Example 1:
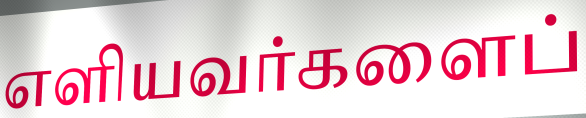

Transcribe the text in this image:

எளியவர்களைப்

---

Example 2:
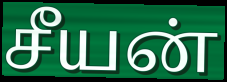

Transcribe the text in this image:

சீயன்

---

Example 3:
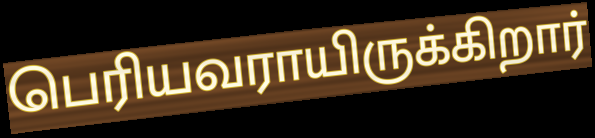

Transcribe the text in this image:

பெரியவராயிருக்கிறார்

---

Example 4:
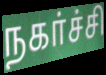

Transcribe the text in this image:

நகர்ச்சி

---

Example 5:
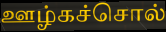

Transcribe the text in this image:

ஊழ்கச்சொல்